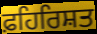
ਫ਼ਹਿਰਿਸ਼ਤ